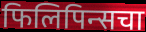
फिलिपिन्सचा